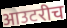
आउटरीच